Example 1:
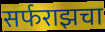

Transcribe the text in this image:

सर्फराझचा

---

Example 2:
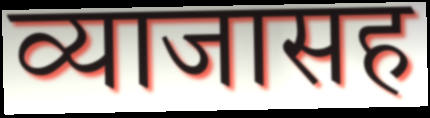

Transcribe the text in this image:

व्याजासह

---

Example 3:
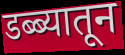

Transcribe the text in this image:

डब्ब्यातून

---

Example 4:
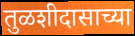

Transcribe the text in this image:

तुळशीदासाच्या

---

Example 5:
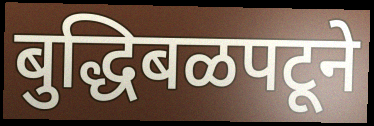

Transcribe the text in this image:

बुद्धिबळपटूने